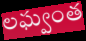
లఘ్వంత